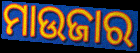
ମାଉଜାର